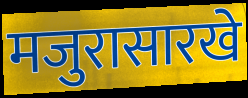
मजुरासारखे